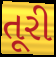
તૂરી